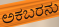
ಅಕಬರನು